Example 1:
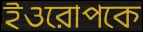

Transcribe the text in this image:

ইওরোপকে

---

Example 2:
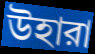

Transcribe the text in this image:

উহারা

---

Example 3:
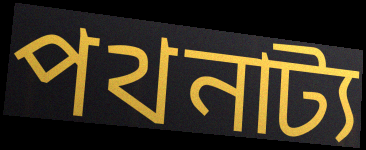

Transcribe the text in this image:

পথনাট্য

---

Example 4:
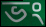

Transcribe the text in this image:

ভং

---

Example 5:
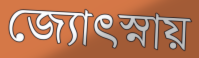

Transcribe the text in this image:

জ্যোৎস্নায়